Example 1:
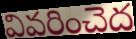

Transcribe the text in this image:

వివరించెద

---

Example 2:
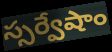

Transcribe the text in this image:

స్సర్వేషాం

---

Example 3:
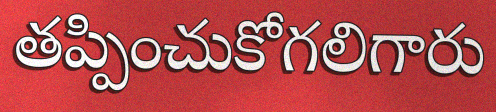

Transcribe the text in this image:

తప్పించుకోగలిగారు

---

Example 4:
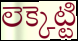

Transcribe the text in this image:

లెక్కెట్టి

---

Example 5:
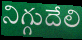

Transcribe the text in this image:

నిగ్గుదేలి